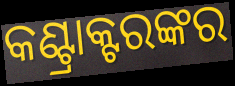
କଣ୍ଟ୍ରାକ୍ଟରଙ୍କର